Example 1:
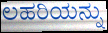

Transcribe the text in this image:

ಲಹರಿಯನ್ನು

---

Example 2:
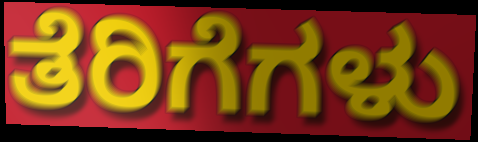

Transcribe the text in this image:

ತೆರಿಗೆಗಳು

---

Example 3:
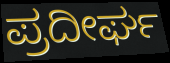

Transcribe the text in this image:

ಪ್ರದೀರ್ಘ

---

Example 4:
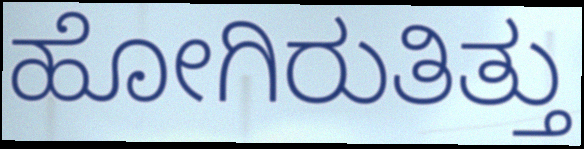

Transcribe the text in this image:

ಹೋಗಿರುತಿತ್ತು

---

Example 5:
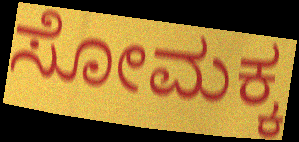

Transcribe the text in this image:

ಸೋಮಕ್ಕ